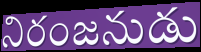
నిరంజనుడు